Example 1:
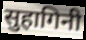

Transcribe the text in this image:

सुहागिनी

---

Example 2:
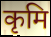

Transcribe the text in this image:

कृमि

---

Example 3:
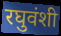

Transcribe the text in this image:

रघुवंशी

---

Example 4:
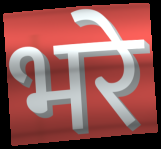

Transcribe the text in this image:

भरे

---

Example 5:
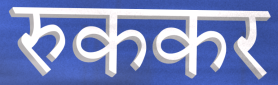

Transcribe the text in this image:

रुककर